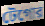
টেগোর